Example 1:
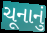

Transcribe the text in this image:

ચૂનાનું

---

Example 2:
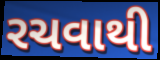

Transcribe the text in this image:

રચવાથી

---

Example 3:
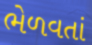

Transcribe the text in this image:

ભેળવતાં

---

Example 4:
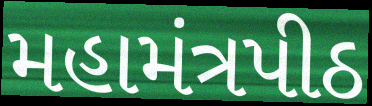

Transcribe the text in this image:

મહામંત્રપીઠ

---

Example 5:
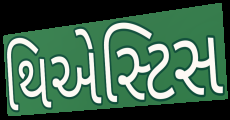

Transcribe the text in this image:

થિએસ્ટિસ